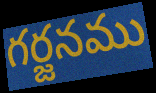
గర్జనము